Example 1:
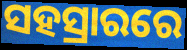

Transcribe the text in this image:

ସହସ୍ରାରରେ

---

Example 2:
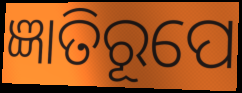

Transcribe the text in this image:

ଜ୍ଞାତିରୂପେ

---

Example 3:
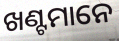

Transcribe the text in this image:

ଖଣ୍ଟମାନେ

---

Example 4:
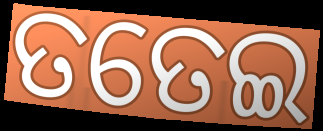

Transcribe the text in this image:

ତତେଇ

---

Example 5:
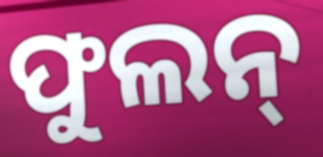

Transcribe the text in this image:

ଫୁଲନ୍